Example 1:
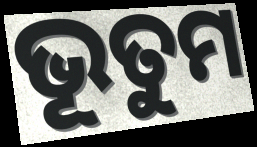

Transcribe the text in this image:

ଭୂତୁମ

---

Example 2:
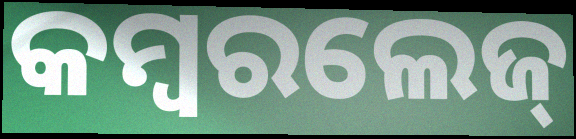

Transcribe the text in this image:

କମ୍ବରଲେଜ୍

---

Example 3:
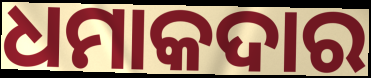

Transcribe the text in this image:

ଧମାକଦାର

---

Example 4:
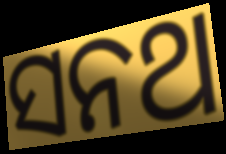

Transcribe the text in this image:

ସନଥ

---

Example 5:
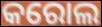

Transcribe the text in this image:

କରୋଲ